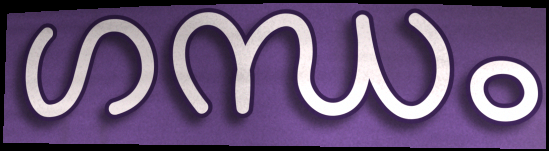
ഗന്ധം